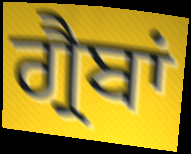
ਗ੍ਰੈਬਾਂ